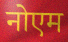
नोएम